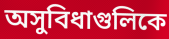
অসুবিধাগুলিকে